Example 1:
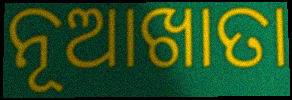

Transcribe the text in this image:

ନୂଆଖାତା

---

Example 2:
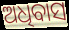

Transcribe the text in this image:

ଅଧିବାସ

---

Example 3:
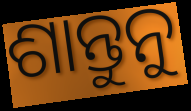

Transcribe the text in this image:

ଶାନ୍ତୁନୁ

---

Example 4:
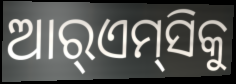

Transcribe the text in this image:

ଆର୍‌ଏମ୍‌ସିକୁ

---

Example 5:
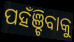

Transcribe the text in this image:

ପହଁଞ୍ଚିବାକୁ